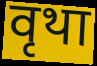
वृथा